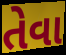
તેવા